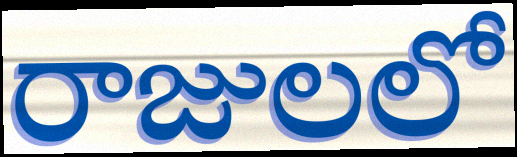
రాజులలో